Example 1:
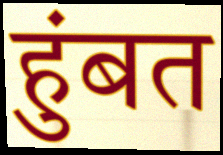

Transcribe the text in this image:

हुंबत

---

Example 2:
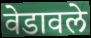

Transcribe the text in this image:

वेडावले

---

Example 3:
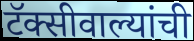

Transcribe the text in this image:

टॅक्सीवाल्यांची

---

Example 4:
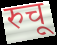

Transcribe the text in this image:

रुचू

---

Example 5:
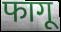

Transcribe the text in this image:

फागू